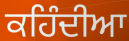
ਕਹਿੰਦੀਆ